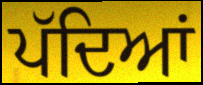
ਪੱਦਿਆਂ